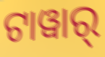
ଟାୱାର୍